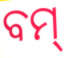
ବମ୍